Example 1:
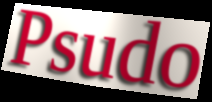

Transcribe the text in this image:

Psudo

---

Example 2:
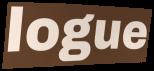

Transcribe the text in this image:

logue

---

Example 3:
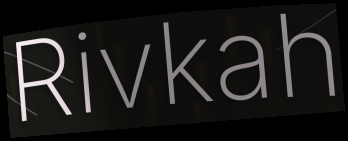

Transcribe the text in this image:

Rivkah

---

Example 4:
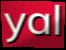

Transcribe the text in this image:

yal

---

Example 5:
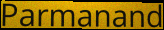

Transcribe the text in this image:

Parmanand